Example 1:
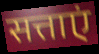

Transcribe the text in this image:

सत्ताएं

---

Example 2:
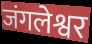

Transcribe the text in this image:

जंगलेश्वर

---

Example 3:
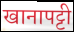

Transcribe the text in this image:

खानापट्टी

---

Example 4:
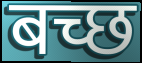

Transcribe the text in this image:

बच्छ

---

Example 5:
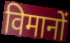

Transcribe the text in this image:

विमानों